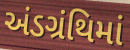
અંડગ્રંથિમાં